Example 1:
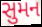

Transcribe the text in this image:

સુમન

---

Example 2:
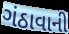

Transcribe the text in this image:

ગંઠાવાની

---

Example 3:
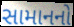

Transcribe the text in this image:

સામાનનો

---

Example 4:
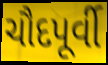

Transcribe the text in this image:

ચૌદપૂર્વી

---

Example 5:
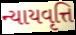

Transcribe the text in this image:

ન્યાયવૃત્તિ